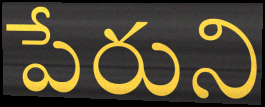
పేరుని